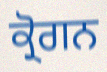
ਕ੍ਰੋਗਨ